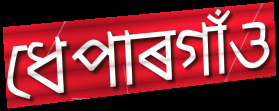
ধেপাৰগাঁও